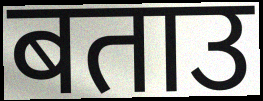
बताउ